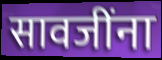
सावजींना